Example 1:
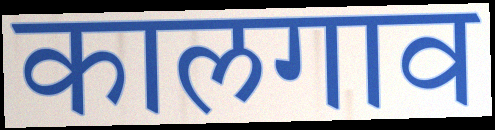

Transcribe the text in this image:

कालगाव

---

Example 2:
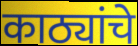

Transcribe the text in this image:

काठ्यांचे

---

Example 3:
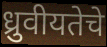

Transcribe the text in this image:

ध्रुवीयतेचे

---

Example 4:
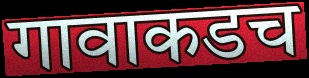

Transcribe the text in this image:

गावाकडच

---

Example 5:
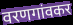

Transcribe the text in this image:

वरणगांवकर